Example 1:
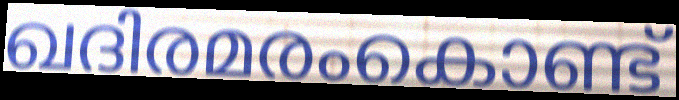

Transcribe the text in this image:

ഖദിരമരംകൊണ്ട്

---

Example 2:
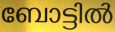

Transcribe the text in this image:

ബോട്ടിൽ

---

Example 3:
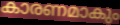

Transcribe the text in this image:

കാരണമാകും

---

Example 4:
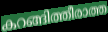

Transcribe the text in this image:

കറങ്ങിത്തീരാത്ത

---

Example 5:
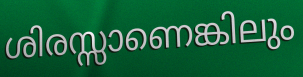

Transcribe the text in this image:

ശിരസ്സാണെങ്കിലും